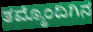
ತಮ್ಮೊಂದಿಗಿನ